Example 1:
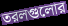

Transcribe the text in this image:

তরলগুলোর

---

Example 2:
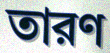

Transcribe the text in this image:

তারণ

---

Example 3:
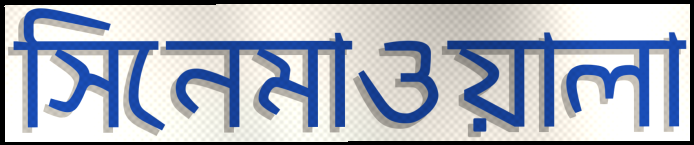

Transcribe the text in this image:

সিনেমাওয়ালা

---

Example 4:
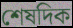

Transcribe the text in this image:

শেষদিক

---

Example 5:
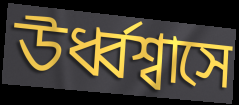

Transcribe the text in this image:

উর্ধ্বশ্বাসে